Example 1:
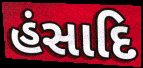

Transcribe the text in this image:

હંસાદિ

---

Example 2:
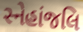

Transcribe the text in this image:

સ્નેહાંજલિ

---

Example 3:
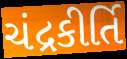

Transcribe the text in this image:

ચંદ્રકીર્તિ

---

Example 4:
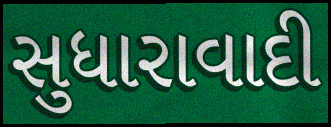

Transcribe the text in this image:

સુધારાવાદી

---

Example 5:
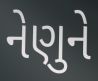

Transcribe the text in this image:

નેણુને